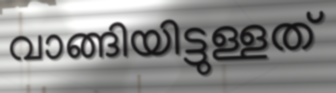
വാങ്ങിയിട്ടുള്ളത്